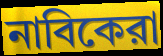
নাবিকেরা